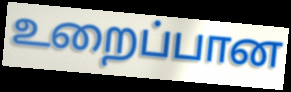
உறைப்பான